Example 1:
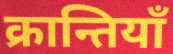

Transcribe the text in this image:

क्रान्तियाँ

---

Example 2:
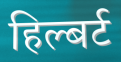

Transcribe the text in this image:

हिल्बर्ट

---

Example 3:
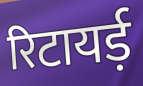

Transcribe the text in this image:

रिटायर्ड़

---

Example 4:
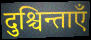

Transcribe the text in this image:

दुश्चिन्ताएँ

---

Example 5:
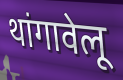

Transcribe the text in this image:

थांगावेलू